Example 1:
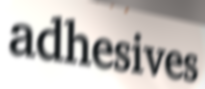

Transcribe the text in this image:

adhesives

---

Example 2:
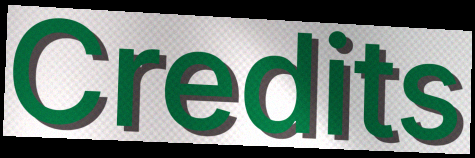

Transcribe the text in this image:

Credits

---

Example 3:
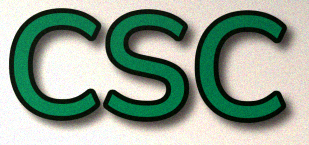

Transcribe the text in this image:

CSC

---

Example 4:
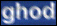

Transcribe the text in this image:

ghod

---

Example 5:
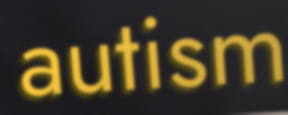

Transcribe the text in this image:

autism